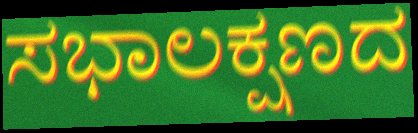
ಸಭಾಲಕ್ಷಣದ